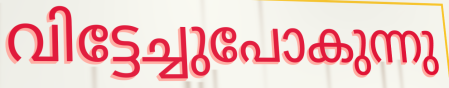
വിട്ടേച്ചുപോകുന്നു